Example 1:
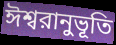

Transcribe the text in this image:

ঈশ্বরানুভূতি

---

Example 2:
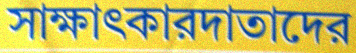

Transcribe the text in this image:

সাক্ষাৎকারদাতাদের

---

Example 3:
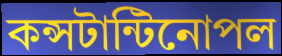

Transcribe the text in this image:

কন্সটান্টিনোপল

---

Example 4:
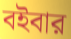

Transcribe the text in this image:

বইবার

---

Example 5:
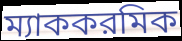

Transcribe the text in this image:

ম্যাককরমিক